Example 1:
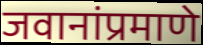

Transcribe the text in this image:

जवानांप्रमाणे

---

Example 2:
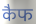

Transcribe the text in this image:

कैफ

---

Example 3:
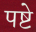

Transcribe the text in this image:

पष्टे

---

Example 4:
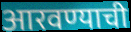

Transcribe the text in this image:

आरवण्याची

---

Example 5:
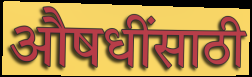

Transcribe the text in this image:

औषधींसाठी